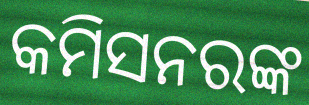
କମିସନରଙ୍କ